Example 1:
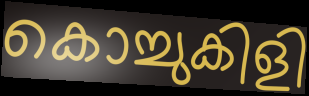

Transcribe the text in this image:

കൊച്ചുകിളി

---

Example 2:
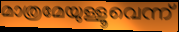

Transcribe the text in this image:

മാത്രമേയുള്ളൂവെന്ന്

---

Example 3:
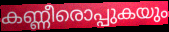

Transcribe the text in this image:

കണ്ണീരൊപ്പുകയും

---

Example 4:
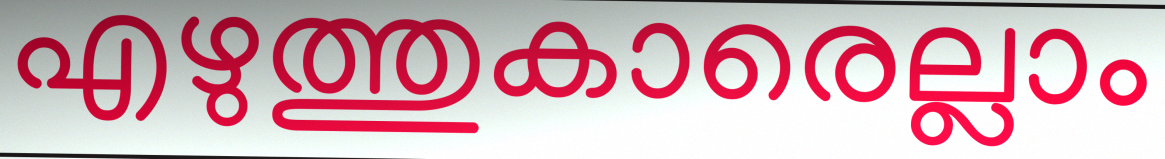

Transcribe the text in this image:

എഴുത്തുകാരെല്ലാം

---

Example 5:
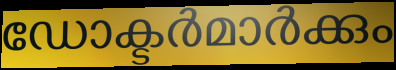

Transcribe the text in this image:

ഡോക്ടർമാർക്കും